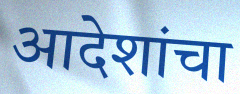
आदेशांचा